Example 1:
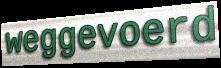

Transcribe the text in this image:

weggevoerd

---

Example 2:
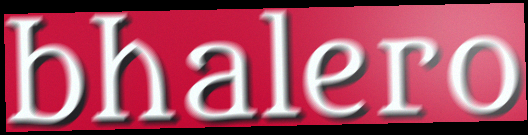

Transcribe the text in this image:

bhalero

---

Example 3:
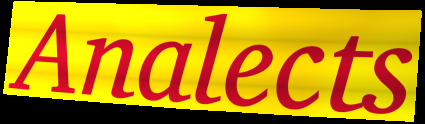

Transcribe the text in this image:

Analects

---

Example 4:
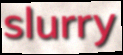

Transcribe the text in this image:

slurry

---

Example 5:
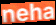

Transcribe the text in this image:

neha